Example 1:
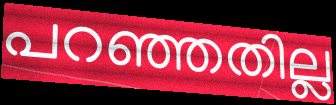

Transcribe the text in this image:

പറഞ്ഞതില്ല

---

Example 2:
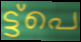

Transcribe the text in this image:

ട്ട്പെ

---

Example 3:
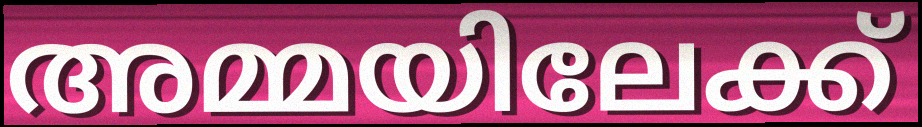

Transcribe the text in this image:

അമ്മയിലേക്ക്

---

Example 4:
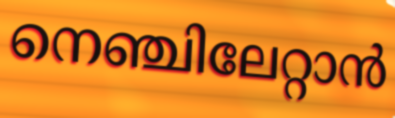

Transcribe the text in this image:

നെഞ്ചിലേറ്റാൻ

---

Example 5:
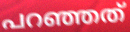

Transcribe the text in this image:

പറഞ്ഞത്